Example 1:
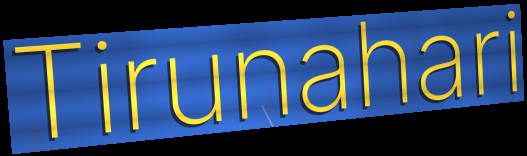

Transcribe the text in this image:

Tirunahari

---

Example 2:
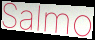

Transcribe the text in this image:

Salmo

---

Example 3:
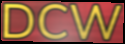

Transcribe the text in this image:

DCW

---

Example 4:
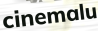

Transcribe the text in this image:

cinemalu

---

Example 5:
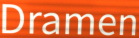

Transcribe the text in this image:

Dramen